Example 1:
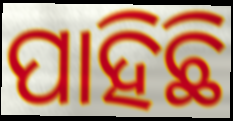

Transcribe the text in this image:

ପାହିଛି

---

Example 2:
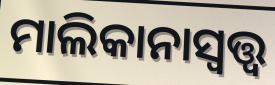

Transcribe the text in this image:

ମାଲିକାନାସ୍ୱତ୍ତ୍ୱ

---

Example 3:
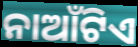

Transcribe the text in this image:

ନାଆଁଟିଏ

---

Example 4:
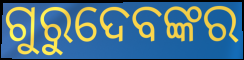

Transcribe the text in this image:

ଗୁରୁଦେବଙ୍କର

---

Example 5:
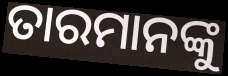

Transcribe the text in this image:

ତାରମାନଙ୍କୁ